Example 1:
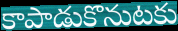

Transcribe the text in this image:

కాపాడుకొనుటకు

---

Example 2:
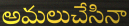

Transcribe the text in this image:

అమలుచేసినా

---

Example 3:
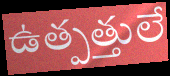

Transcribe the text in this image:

ఉత్పత్తులే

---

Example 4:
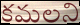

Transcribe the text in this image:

కమలని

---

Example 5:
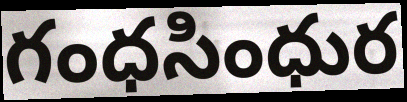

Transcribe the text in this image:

గంధసింధుర